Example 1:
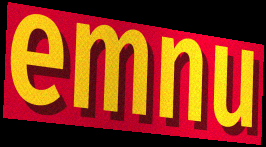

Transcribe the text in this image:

emnu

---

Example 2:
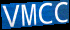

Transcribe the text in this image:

VMCC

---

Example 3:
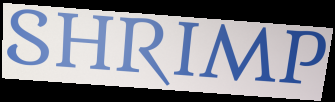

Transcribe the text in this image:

SHRIMP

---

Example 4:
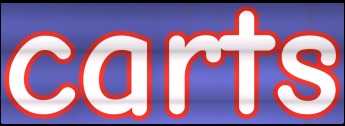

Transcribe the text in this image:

carts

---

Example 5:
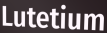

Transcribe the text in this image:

Lutetium